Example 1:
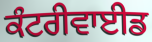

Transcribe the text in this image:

ਕੰਟਰੀਵਾਈਡ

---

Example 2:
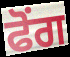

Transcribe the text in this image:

ਫੋਂਗ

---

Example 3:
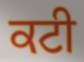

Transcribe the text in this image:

ਕਟੀ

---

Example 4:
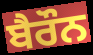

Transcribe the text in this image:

ਬੈਰੌਨ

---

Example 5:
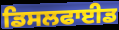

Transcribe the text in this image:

ਡਿਸਲਫਾਈਡ